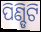
ପିଣ୍ଡିଟି